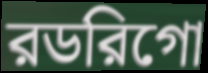
রডরিগো